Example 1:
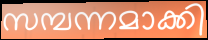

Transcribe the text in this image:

സമ്പന്നമാക്കി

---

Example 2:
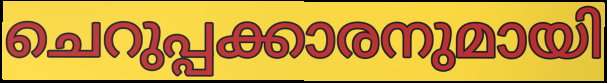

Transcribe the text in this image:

ചെറുപ്പക്കാരനുമായി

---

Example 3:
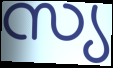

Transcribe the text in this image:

സ്യ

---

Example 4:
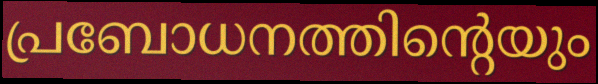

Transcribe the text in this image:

പ്രബോധനത്തിന്റെയും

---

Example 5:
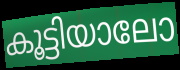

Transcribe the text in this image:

കൂട്ടിയാലോ